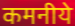
कमनीये